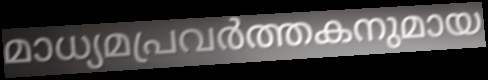
മാധ്യമപ്രവർത്തകനുമായ